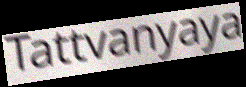
Tattvanyaya